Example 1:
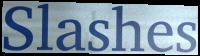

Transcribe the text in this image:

Slashes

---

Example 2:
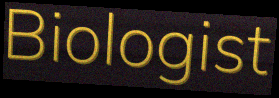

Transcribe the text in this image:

Biologist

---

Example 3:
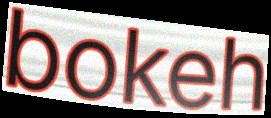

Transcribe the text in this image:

bokeh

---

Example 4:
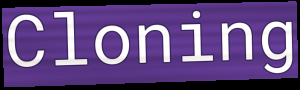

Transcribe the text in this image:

Cloning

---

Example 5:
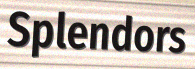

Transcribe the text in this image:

Splendors